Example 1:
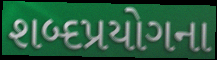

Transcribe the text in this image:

શબ્દપ્રયોગના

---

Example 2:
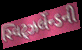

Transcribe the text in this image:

સ્વિટ્ઝર્લેન્ડની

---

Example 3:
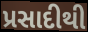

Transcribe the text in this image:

પ્રસાદીથી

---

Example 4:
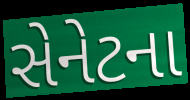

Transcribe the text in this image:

સેનેટના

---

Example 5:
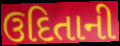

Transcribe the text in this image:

ઉદિતાની